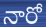
నారో